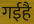
गईहै